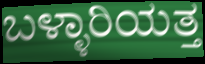
ಬಳ್ಳಾರಿಯತ್ತ